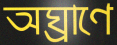
অঘ্রাণে